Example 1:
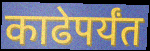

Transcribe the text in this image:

काढेपर्यंत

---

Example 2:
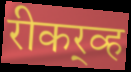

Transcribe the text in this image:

रीकर्व्ह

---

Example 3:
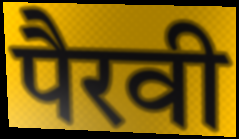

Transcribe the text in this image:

पैरवी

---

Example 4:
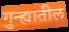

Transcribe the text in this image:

गुन्ह्यातील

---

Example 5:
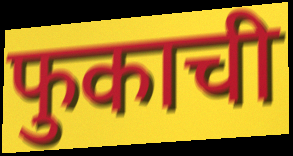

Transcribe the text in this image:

फुकाची